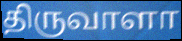
திருவாளா